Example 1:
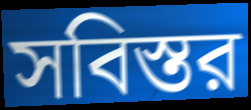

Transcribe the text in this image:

সবিস্তর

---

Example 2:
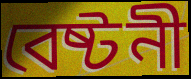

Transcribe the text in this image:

বেষ্টনী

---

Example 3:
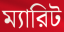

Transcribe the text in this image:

ম্যারিট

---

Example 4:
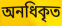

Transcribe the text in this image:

অনধিকৃত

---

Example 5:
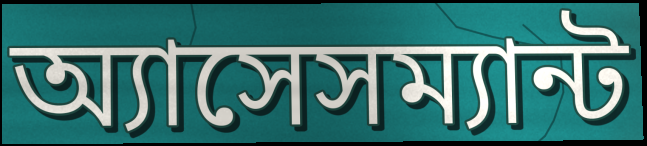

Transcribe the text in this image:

অ্যাসেসম্যান্ট